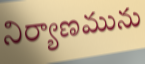
నిర్యాణమును